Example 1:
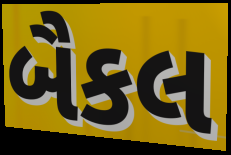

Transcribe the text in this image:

બૈકલ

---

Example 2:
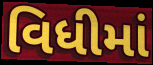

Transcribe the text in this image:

વિધીમાં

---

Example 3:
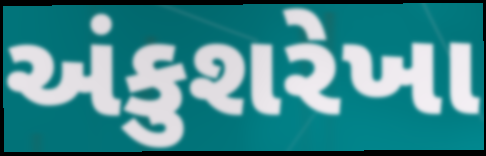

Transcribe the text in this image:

અંકુશરેખા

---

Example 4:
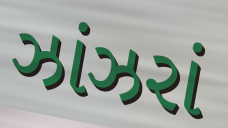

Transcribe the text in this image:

ઝાંઝરાં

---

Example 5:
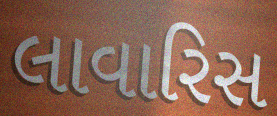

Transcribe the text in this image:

લાવારિસ